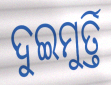
ଦୁଇମୁର୍ତ୍ତି